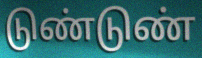
டுண்டுண்